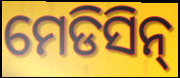
ମେଡିସିନ୍